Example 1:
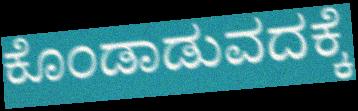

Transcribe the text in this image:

ಕೊಂಡಾಡುವದಕ್ಕೆ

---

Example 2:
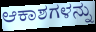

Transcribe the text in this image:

ಆಕಾಶಗಳನ್ನು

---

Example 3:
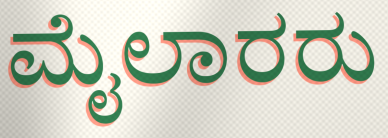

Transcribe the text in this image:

ಮೈಲಾರರು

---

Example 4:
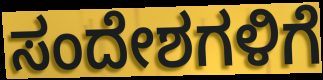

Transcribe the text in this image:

ಸಂದೇಶಗಳಿಗೆ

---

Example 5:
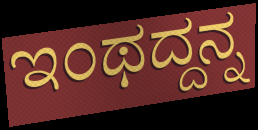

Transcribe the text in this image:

ಇಂಥದ್ದನ್ನ